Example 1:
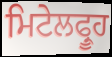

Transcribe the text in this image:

ਮਿਟੇਲਫ੍ਰੂਹ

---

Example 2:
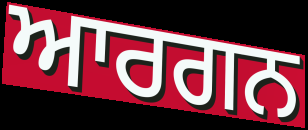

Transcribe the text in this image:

ਆਰਗਨ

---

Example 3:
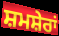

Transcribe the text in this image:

ਸ਼ਮਸ਼ੇਰਾਂ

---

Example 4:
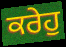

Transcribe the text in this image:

ਕਰੇਹੁ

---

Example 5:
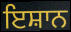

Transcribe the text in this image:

ਇਸ਼ਾਨ